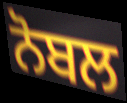
ਨੋਬਲ